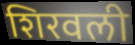
शिरवली